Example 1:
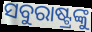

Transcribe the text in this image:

ସବୁରାଷ୍ଟ୍ରଙ୍କୁ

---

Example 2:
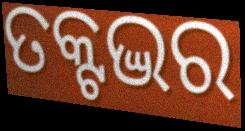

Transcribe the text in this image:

ତକ୍ଟଦ୍ଭର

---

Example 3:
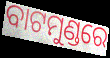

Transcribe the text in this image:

ବାଟମୁଣ୍ଡରେ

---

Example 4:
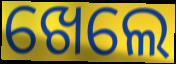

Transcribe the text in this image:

ଖେଲେ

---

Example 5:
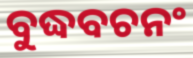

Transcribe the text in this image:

ବୁଦ୍ଧବଚନଂ